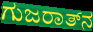
ಗುಜರಾತ್‍ನ